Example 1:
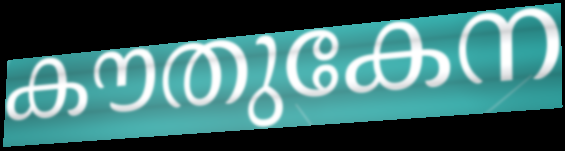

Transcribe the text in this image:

കൗതുകേന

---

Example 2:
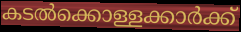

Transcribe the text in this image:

കടൽക്കൊള്ളക്കാർക്ക്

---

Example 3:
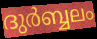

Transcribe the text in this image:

ദുർബ്ബലം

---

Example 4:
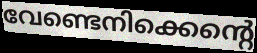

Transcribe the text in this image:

വേണ്ടെനിക്കെന്റെ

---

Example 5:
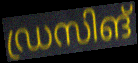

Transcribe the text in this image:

ഡ്രസിങ്